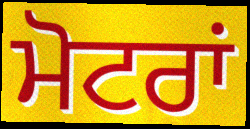
ਮੋਟਰਾਂ